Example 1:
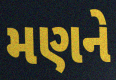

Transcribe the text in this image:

મણને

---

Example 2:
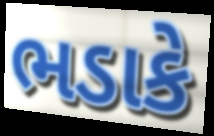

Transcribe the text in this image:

ભડાકે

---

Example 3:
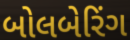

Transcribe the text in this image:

બોલબેરિંગ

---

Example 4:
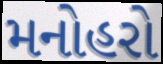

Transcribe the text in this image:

મનોહરો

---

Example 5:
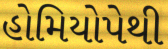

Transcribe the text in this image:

હોમિયોપેથી